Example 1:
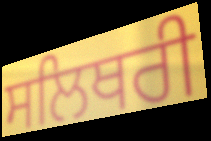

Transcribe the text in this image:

ਸਲਿਥਰੀ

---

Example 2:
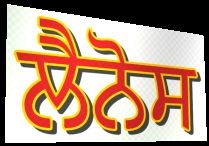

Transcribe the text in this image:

ਲੈਨੋਸ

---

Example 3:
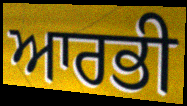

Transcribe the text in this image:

ਆਰਭੀ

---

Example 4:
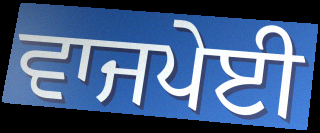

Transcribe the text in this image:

ਵਾਜਪੇਈ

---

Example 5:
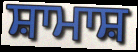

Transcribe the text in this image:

ਸ਼ਾਮਾਸ਼